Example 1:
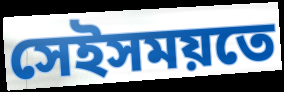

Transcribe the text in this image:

সেইসময়তে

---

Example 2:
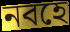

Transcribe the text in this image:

নবহে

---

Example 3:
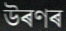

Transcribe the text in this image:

উৰণৰ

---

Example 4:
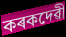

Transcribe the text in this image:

কৰকদেৱী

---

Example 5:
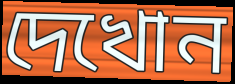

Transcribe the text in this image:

দেখোন